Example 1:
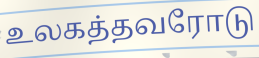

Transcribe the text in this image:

உலகத்தவரோடு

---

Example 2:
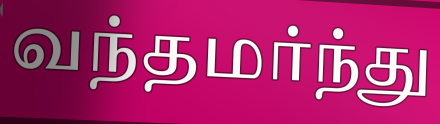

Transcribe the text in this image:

வந்தமர்ந்து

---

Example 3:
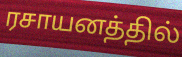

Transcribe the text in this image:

ரசாயனத்தில்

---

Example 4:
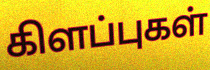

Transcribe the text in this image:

கிளப்புகள்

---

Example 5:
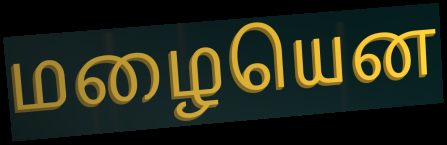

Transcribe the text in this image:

மழையென